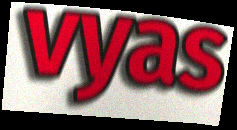
vyas